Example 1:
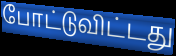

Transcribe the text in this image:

போட்டுவிட்டது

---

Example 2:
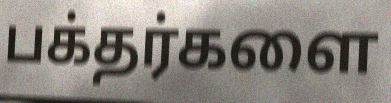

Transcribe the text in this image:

பக்தர்களை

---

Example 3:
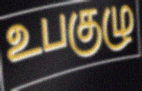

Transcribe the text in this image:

உபகுழு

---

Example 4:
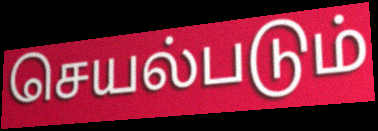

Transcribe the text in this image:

செயல்படும்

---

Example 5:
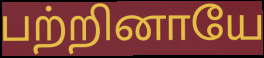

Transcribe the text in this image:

பற்றினாயே